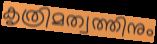
കൃത്രിമത്വത്തിനും